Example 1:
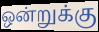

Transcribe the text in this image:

ஒன்றுக்கு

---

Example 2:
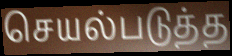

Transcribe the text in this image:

செயல்படுத்த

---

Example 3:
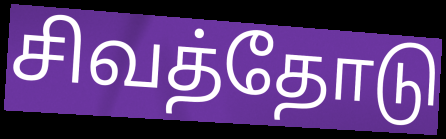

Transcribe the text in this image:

சிவத்தோடு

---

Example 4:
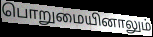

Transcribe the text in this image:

பொறுமையினாலும்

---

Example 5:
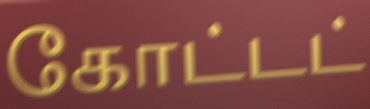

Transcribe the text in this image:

கோட்டட்